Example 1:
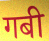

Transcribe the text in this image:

गबी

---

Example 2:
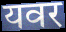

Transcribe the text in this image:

यवर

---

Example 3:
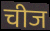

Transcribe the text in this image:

चीज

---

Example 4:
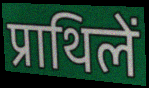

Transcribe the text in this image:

प्राथिलें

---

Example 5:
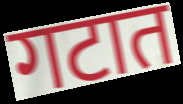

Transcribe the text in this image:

गटात